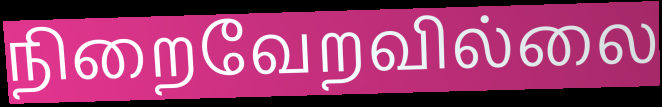
நிறைவேறவில்லை